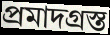
প্রমাদগ্রস্ত